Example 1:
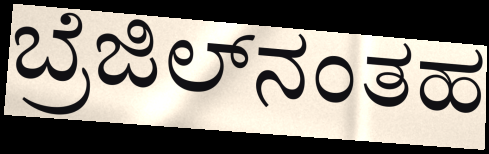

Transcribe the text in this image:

ಬ್ರೆಜಿಲ್‌ನಂತಹ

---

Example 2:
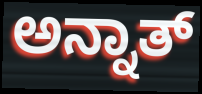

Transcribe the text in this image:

ಅನ್ನಾತ್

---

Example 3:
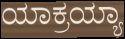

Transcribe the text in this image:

ಯಾಕ್ರಯ್ಯಾ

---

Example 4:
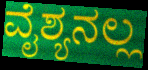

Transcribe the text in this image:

ವೈಶ್ಯನಲ್ಲ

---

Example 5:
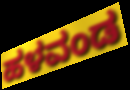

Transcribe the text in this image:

ಹಳವಂಡ